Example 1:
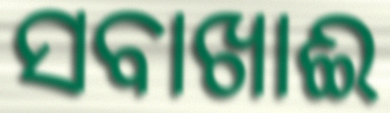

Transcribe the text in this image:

ସବାଖାଈ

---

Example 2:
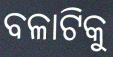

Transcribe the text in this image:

ବଳାଟିକୁ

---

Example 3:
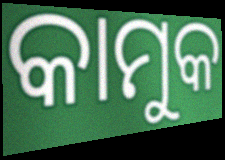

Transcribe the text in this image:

କାମୁକ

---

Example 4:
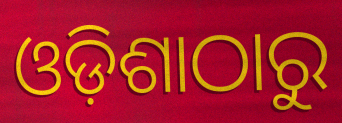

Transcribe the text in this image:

ଓଡ଼ିଶାଠାରୁ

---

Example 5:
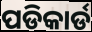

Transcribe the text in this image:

ପଡିକାର୍ଡ